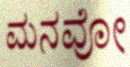
ಮನವೋ